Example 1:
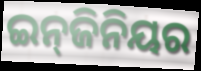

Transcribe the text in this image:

ଇନ୍‌ଜିନିୟର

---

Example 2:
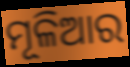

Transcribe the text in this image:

ମୂଳିଆର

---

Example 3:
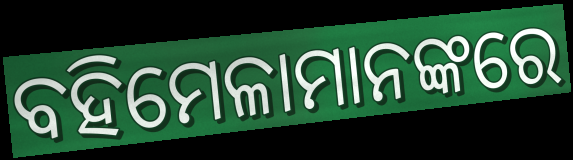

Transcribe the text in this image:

ବହିମେଳାମାନଙ୍କରେ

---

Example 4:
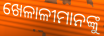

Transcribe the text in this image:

ଖେଳାଳୀମାନଙ୍କୁ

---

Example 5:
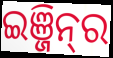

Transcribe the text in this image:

ଇଞ୍ଜିନ୍‍ର